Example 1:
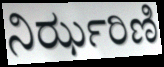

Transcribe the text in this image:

ನಿರ್ಝರಿಣಿ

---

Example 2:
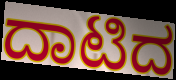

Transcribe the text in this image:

ದಾಟಿದ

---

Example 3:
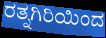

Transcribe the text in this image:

ರತ್ನಗಿರಿಯಿಂದ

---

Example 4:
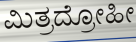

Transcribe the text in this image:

ಮಿತ್ರದ್ರೋಹೀ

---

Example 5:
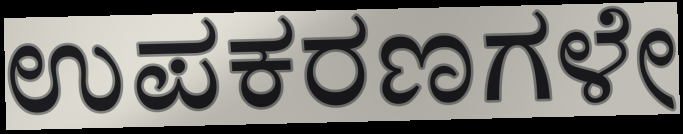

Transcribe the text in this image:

ಉಪಕರಣಗಳೇ